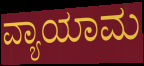
ವ್ಯಾಯಾಮ